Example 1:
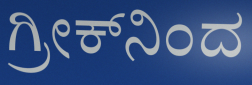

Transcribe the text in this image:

ಗ್ರೀಕ್‌ನಿಂದ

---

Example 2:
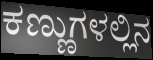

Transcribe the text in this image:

ಕಣ್ಣುಗಳಲ್ಲಿನ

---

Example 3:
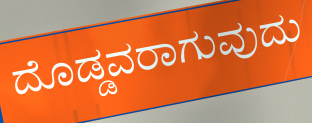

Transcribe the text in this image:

ದೊಡ್ಡವರಾಗುವುದು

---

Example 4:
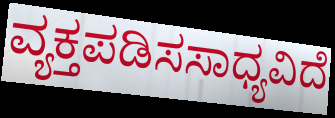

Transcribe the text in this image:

ವ್ಯಕ್ತಪಡಿಸಸಾಧ್ಯವಿದೆ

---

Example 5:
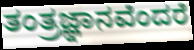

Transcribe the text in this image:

ತಂತ್ರಜ್ಞಾನವೆಂದರೆ